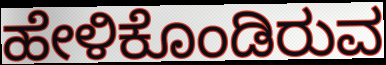
ಹೇಳಿಕೊಂಡಿರುವ